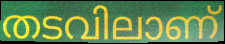
തടവിലാണ്